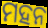
ମହନ